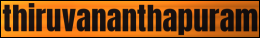
thiruvananthapuram